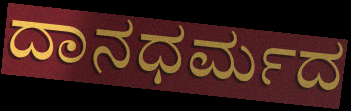
ದಾನಧರ್ಮದ